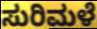
ಸುರಿಮಳೆ